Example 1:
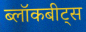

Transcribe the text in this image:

ब्लॉकबीट्स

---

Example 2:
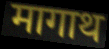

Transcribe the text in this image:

मागाथ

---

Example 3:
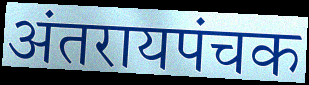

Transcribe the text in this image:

अंतरायपंचक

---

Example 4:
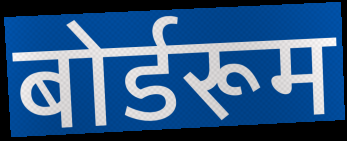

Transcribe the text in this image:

बोर्डरूम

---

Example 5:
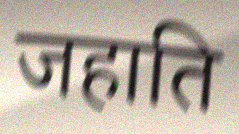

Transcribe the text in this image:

जहाति